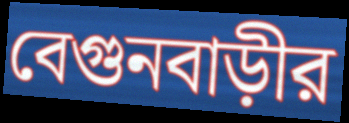
বেগুনবাড়ীর